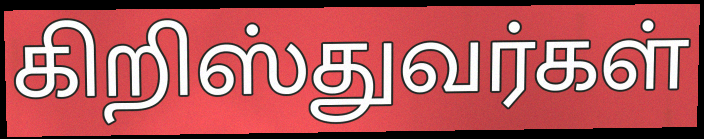
கிறிஸ்துவர்கள்